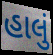
હાલું